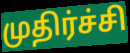
முதிர்ச்சி